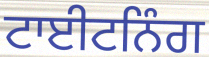
ਟਾਈਟਨਿੰਗ